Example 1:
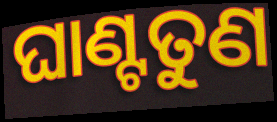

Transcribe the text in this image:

ଘାଣ୍ଟତୁଣ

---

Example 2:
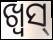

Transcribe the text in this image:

ଖ୍ୱସ୍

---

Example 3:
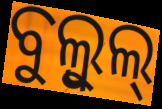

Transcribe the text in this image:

ବୁଲ୍ବୁଲ୍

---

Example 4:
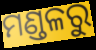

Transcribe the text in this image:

ମଣ୍ଡଳରୁ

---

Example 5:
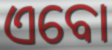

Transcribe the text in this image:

ଏବୋ